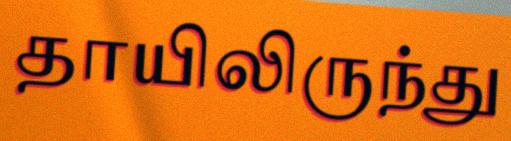
தாயிலிருந்து